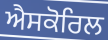
ਐਸਕੋਰਿਲ